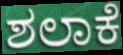
ಶಲಾಕೆ